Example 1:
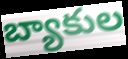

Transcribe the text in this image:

బ్యాకుల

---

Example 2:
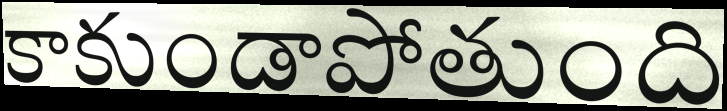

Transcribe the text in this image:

కాకుండాపోతుంది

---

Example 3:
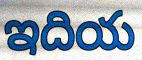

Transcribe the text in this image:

ఇదియ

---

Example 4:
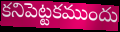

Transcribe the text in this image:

కనిపెట్టకముందు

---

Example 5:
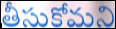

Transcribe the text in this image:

తీసుకోమని